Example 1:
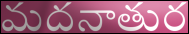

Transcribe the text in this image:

మదనాతుర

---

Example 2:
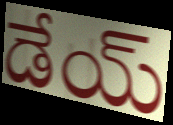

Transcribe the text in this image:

డేయ్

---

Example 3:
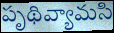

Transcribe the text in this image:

పృథివ్యామసి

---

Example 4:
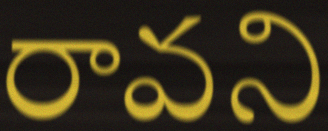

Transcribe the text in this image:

రావని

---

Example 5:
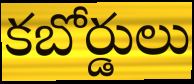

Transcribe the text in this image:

కబోర్డులు